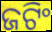
ଜଟିଂ